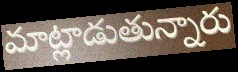
మాట్లాడుతున్నారు